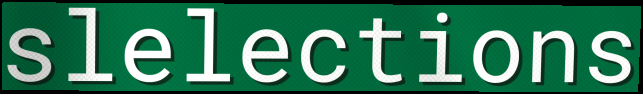
slelections